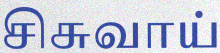
சிசுவாய்